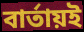
বার্তায়ই